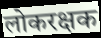
लोकरक्षक